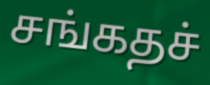
சங்கதச்